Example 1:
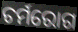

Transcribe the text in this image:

ଚର୍ମରୋଗ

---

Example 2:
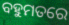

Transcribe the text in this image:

ବହୁମତରେ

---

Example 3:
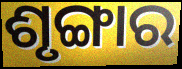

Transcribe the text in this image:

ଶୃଙ୍ଗାର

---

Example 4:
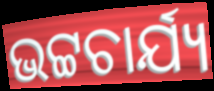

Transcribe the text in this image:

ଭଟ୍ଟଚାର୍ଯ୍ୟ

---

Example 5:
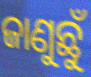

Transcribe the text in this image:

ଜାଣୁଛୁଁ